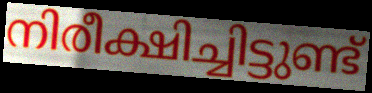
നിരീക്ഷിച്ചിട്ടുണ്ട്